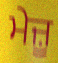
ਮੇਜ਼ੂ